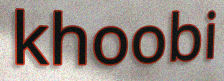
khoobi